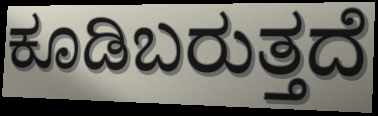
ಕೂಡಿಬರುತ್ತದೆ